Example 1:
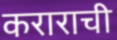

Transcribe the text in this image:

कराराची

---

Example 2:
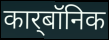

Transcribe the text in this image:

कार्‌बॉनिक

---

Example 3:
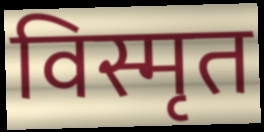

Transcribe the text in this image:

विस्मृत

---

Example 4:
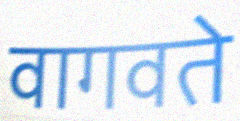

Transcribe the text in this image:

वागवते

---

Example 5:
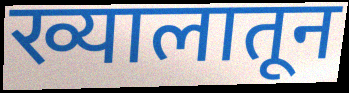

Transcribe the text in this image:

ख्यालातून